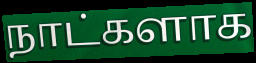
நாட்களாக